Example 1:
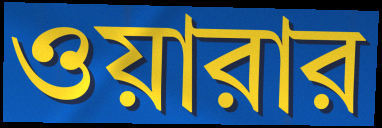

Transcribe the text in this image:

ওয়ারার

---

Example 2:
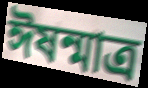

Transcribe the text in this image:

ঈষন্মাত্র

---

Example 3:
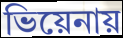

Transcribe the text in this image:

ভিয়েনায়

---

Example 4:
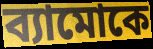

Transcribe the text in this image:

ব্যামোকে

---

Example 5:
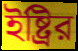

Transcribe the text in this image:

ইষ্ট্রির